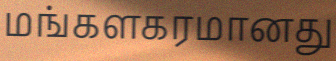
மங்களகரமானது